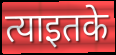
त्याइतके